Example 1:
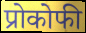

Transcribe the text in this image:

प्रोकोफी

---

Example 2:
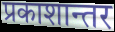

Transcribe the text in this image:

प्रकाशान्तर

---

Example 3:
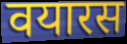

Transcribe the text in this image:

वयारस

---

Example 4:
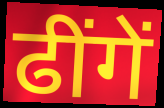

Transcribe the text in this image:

ढींगें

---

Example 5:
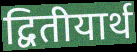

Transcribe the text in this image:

द्वितीयार्थ